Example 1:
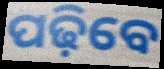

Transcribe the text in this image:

ପଢ଼ିବେ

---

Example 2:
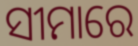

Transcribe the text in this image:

ସୀମାରେ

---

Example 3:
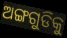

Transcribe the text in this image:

ଅଙ୍ଗଗୁଡିକୁ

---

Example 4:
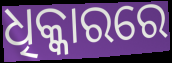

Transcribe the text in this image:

ଧିକ୍କାରରେ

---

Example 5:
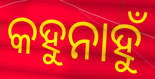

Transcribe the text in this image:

କହୁନାହୁଁ